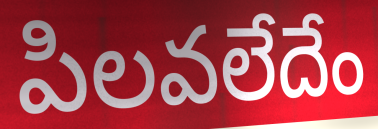
పిలవలేదేం